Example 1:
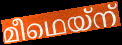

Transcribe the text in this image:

മീഥെയ്ന്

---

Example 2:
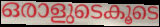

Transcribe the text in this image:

ഒരാളുടെകൂടെ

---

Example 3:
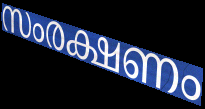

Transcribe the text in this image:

സംരക്ഷണം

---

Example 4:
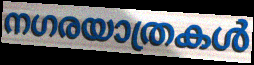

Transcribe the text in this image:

നഗരയാത്രകൾ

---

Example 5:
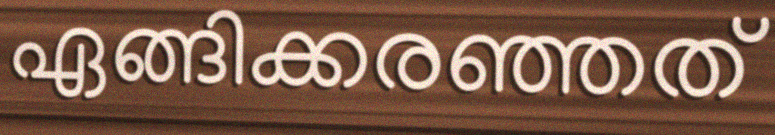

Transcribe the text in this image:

ഏങ്ങിക്കരഞ്ഞത്